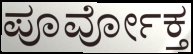
ಪೂರ್ವೋಕ್ತ